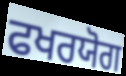
ਫਖਰਯੋਗ